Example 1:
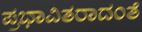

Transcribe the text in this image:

ಪ್ರಭಾವಿತರಾದಂತೆ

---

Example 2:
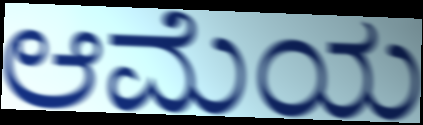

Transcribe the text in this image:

ಆಮೆಯ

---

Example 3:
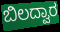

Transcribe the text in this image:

ಬಿಲದ್ವಾರ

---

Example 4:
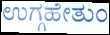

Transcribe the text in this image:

ಉಗ್ಗಹೇತುಂ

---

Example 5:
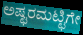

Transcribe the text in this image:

ಅಷ್ಟರಮಟ್ಟಿಗೇ